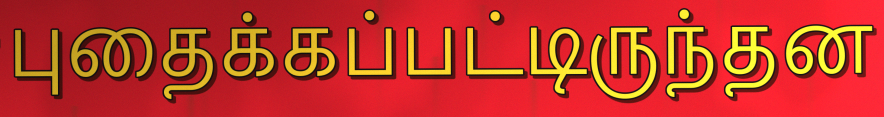
புதைக்கப்பட்டிருந்தன